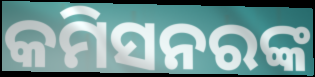
କମିସନରଙ୍କ